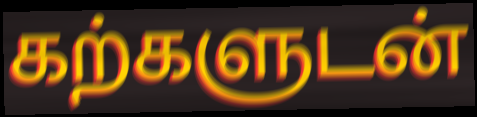
கற்களுடன்